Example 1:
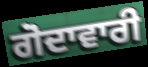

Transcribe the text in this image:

ਗੋਦਾਵਾਰੀ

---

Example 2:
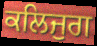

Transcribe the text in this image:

ਕਲਿਜੁਗ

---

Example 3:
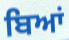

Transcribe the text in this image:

ਬਿਆਂ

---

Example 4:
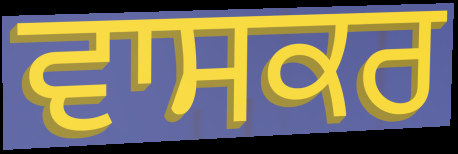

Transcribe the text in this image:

ਵਾਸਕਰ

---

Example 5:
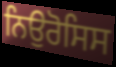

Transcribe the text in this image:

ਨਿਉਰੋਸਿਸ